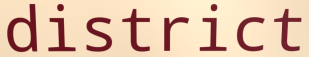
district